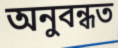
অনুবন্ধত